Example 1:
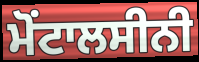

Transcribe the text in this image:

ਮੋਂਟਾਲਸੀਨੀ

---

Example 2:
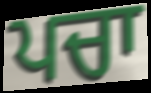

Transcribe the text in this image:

ਪਚਾ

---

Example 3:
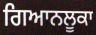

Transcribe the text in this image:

ਗਿਆਨਲੂਕਾ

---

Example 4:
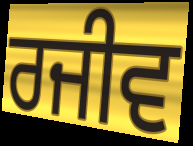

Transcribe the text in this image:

ਰਜੀਵ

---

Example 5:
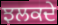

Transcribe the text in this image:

ਝਲਕਦੇ